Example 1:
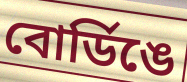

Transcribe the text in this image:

বোর্ডিঙে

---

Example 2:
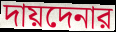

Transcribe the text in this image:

দায়দেনার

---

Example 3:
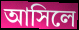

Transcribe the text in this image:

আসিলে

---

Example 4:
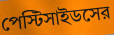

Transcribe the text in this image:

পেস্টিসাইডসের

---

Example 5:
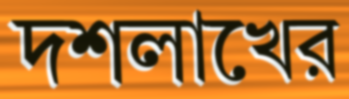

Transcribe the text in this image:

দশলাখের